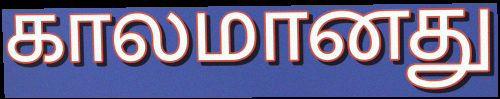
காலமானது